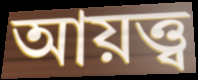
আয়ত্ত্ব